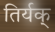
तिर्यक्